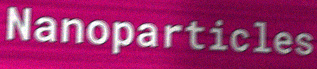
Nanoparticles